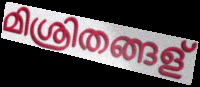
മിശ്രിതങ്ങള്